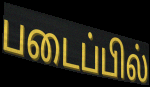
படைப்பில்